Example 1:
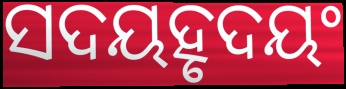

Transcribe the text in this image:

ସଦୟହୃଦୟଂ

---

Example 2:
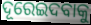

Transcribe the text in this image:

ଦୂରେଇଦବାକୁ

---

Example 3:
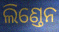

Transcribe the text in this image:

ଲିଣ୍ଡେନ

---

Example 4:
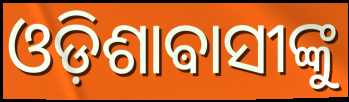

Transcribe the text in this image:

ଓଡ଼ିଶାଵାସୀଙ୍କୁ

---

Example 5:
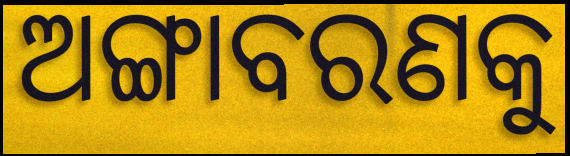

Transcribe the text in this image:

ଅଙ୍ଗାବରଣକୁ